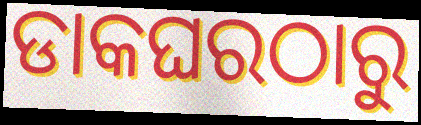
ଡାକଘରଠାରୁ